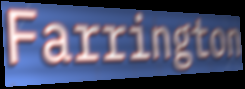
Farrington